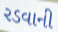
રડવાની